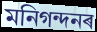
মনিগন্দনৰ